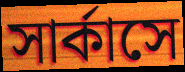
সার্কাসে